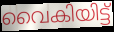
വൈകിയിട്ട്